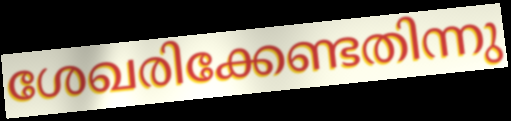
ശേഖരിക്കേണ്ടതിന്നു